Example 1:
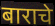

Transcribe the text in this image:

बाराचे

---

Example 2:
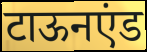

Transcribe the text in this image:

टाऊनएंड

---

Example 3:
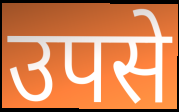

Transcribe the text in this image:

उपसे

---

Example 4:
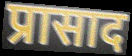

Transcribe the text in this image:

प्रासाद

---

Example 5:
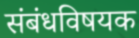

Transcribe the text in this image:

संबंधविषयक